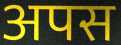
अपस